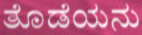
ತೊಡೆಯನು